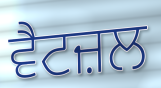
ਵੈਟਜ਼ਲ